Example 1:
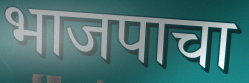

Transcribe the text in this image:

भाजपाचा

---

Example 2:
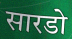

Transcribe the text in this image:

सारडो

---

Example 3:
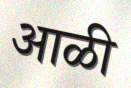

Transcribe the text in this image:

आळी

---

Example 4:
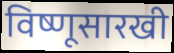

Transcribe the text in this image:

विष्णूसारखी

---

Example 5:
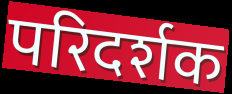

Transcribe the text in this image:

परिदर्शक